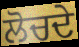
ਲੋਚਦੇ